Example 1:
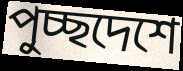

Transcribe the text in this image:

পুচ্ছদেশে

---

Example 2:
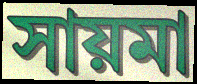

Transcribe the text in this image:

সায়মা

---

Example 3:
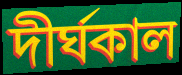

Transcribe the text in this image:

দীর্ঘকাল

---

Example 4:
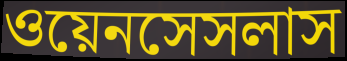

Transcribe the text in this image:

ওয়েনসেসলাস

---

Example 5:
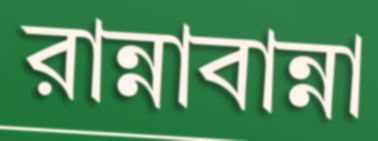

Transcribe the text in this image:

রান্নাবান্না